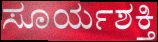
ಸೂರ್ಯಶಕ್ತಿ